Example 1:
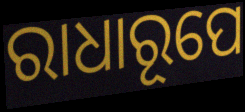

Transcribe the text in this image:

ରାଧାରୂପେ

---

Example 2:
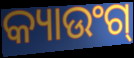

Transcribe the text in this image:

କ୍ୟାଉଂଗ୍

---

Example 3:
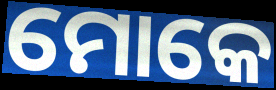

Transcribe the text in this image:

ମୋକେ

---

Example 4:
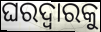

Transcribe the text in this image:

ଘରଦ୍ୱାରକୁ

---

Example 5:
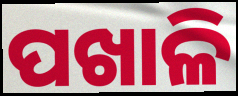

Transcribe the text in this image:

ପଖାଳି